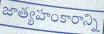
జాత్యహంకారాన్ని